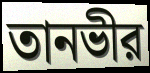
তানভীর